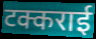
टक्कराई